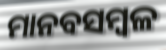
ମାନବସମ୍ବଳ